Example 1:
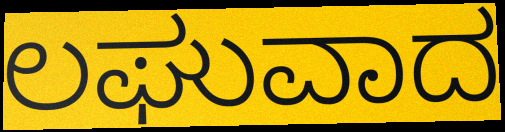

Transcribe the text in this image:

ಲಘುವಾದ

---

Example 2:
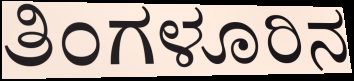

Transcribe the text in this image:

ತಿಂಗಳೂರಿನ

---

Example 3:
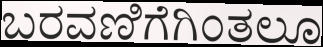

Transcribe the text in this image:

ಬರವಣಿಗೆಗಿಂತಲೂ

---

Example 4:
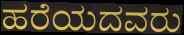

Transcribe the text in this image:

ಹರೆಯದವರು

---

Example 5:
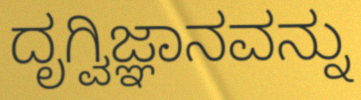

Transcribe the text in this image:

ದೃಗ್ವಿಜ್ಞಾನವನ್ನು